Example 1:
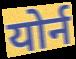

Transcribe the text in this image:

योर्न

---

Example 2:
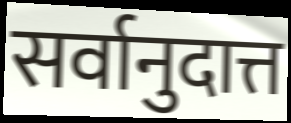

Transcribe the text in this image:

सर्वानुदात्त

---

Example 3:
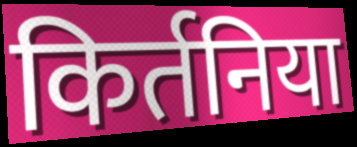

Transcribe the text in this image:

किर्तनिया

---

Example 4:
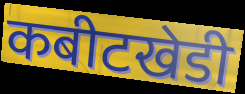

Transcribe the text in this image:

कबीटखेडी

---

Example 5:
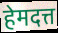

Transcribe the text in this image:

हेमदत्त